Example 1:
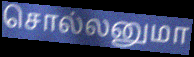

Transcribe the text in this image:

சொல்லனுமா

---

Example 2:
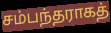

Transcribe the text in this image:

சம்பந்தராகத்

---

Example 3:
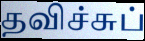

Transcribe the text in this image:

தவிச்சுப்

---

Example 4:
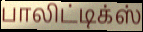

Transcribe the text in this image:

பாலிட்டிக்ஸ்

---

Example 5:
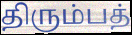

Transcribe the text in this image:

திரும்பத்